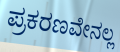
ಪ್ರಕರಣವೇನಲ್ಲ